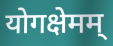
योगक्षेमम्